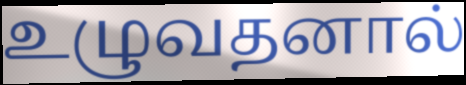
உழுவதனால்